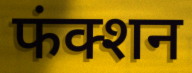
फंक्शन